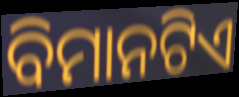
ବିମାନଟିଏ